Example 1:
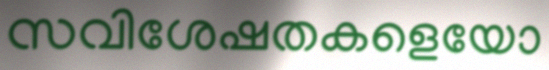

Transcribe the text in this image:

സവിശേഷതകളെയോ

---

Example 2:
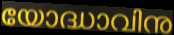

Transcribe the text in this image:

യോദ്ധാവിനു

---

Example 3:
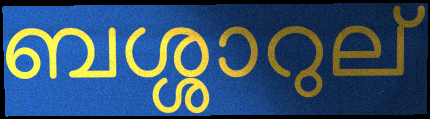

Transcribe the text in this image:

ബശ്ശാറുല്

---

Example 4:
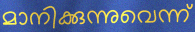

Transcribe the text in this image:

മാനിക്കുന്നുവെന്ന്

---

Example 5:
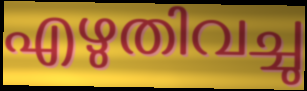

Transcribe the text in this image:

എഴുതിവച്ചു